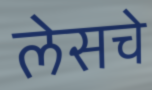
लेसचे